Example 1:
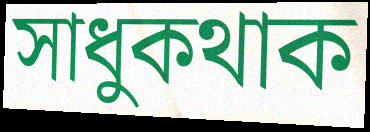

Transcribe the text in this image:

সাধুকথাক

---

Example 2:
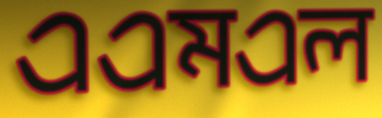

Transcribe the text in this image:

এএমএল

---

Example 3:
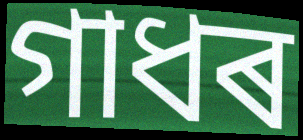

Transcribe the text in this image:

গাধৰ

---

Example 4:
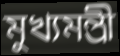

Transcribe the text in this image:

মুখ্যমন্ত্ৰী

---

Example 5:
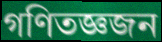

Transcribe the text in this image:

গণিতজ্ঞজন